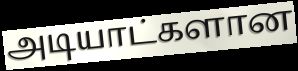
அடியாட்களான